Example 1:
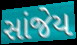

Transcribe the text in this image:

સાંજેય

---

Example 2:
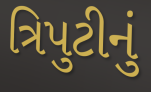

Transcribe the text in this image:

ત્રિપુટીનું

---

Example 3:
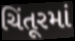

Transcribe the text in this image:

ચિંતૂરમાં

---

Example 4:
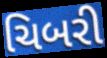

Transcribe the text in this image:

ચિબરી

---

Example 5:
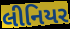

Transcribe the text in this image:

લીનિયર